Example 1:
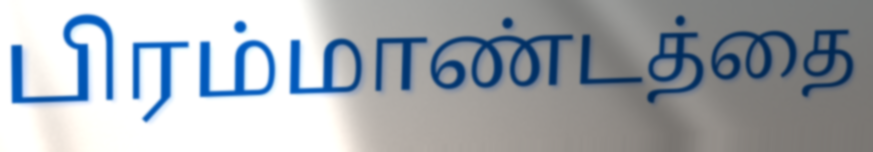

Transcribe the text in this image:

பிரம்மாண்டத்தை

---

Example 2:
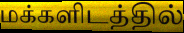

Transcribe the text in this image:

மக்களிடத்தில்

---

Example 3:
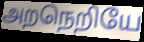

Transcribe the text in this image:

அறநெறியே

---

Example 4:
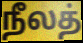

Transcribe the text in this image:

நீலத்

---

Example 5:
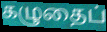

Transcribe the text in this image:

கழுதைப்